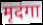
मृदंगा